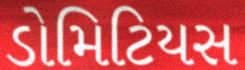
ડોમિટિયસ